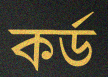
কৰ্ড